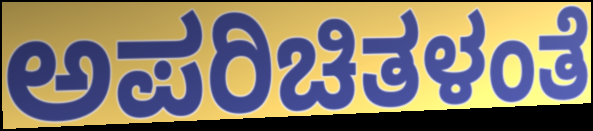
ಅಪರಿಚಿತಳಂತೆ